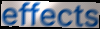
effects